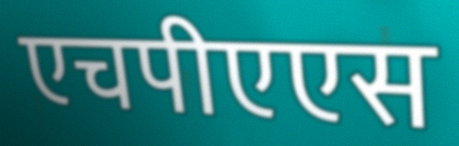
एचपीएएस